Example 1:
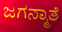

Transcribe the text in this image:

ಜಗನ್ಮಾತೆ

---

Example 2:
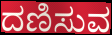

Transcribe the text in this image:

ದಣಿಸುವ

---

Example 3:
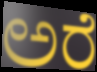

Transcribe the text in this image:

ಅರೆ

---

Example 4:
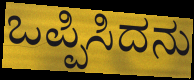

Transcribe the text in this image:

ಒಪ್ಪಿಸಿದನು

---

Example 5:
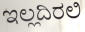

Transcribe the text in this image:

ಇಲ್ಲದಿರಲಿ